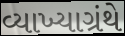
વ્યાખ્યાગ્રંથે